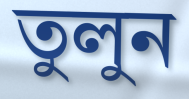
তুলুন